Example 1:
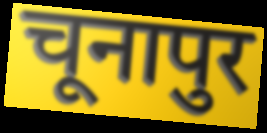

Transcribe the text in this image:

चूनापुर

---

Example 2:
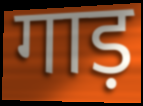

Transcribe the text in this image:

गाड़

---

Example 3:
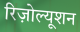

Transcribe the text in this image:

रिज़ोल्यूशन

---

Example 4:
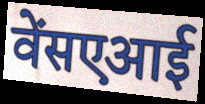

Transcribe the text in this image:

वेंसएआई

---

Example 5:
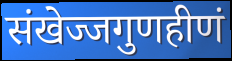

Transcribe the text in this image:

संखेज्जगुणहीणं